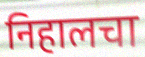
निहालचा